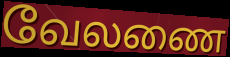
வேலணை